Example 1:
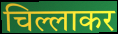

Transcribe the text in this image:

चिल्लाकर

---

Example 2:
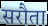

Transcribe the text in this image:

सरौता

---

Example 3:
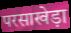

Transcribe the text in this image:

परसाखेड़ा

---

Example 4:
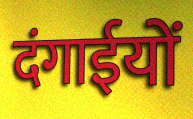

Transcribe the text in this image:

दंगाईयों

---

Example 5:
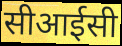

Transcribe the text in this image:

सीआईसी